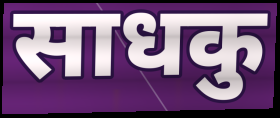
साधकु